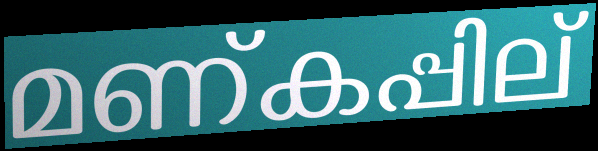
മണ്കപ്പില്